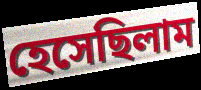
হেসেছিলাম